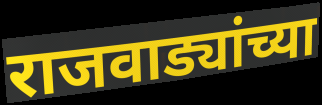
राजवाड्यांच्या